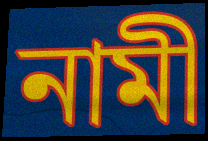
নামী